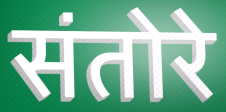
संतोरे